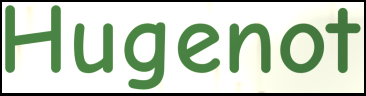
Hugenot